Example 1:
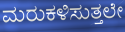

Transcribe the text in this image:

ಮರುಕಳಿಸುತ್ತಲೇ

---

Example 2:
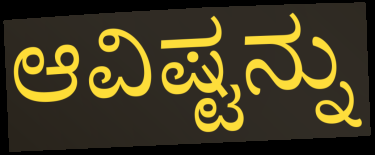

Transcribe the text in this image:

ಆವಿಷ್ಟನ್ನು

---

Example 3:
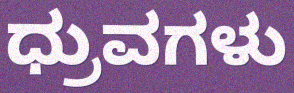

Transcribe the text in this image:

ಧ್ರುವಗಳು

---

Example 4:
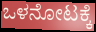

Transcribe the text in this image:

ಒಳನೋಟಕ್ಕೆ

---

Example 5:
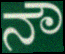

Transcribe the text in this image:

ನೌ